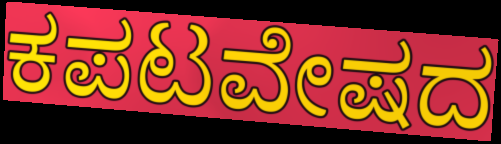
ಕಪಟವೇಷದ